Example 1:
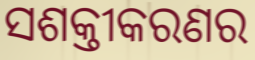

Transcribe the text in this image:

ସଶକ୍ତୀକରଣର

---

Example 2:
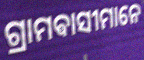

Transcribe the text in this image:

ଗ୍ରାମଵାସୀମାନେ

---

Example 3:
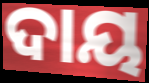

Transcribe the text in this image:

ଦାୟ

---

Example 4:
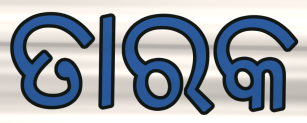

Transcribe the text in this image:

ତାରକ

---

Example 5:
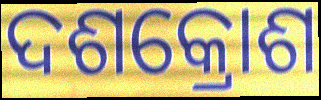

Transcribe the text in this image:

ଦଶକ୍ରୋଶ